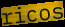
ricos